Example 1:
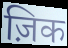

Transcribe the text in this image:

ज़िक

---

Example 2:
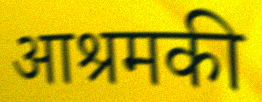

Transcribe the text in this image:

आश्रमकी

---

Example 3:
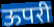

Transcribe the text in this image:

ऊपरी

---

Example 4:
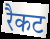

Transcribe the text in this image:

रैकट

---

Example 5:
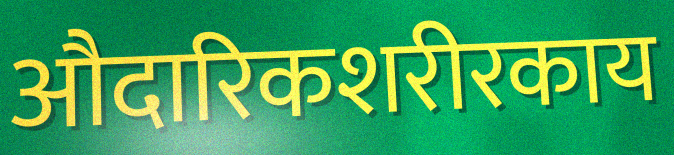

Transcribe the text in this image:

औदारिकशरीरकाय